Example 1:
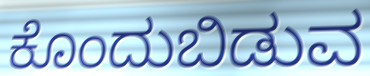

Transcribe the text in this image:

ಕೊಂದುಬಿಡುವ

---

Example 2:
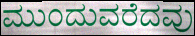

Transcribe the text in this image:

ಮುಂದುವರೆದವು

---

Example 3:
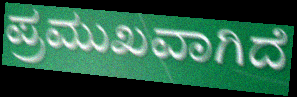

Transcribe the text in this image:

ಪ್ರಮುಖವಾಗಿದೆ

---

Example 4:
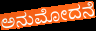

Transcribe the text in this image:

ಅನುಮೋದನೆ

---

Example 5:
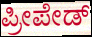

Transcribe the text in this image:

ಪ್ರೀಪೇಡ್